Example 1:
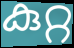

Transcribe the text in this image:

കുറ്റ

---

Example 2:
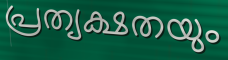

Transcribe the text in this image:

പ്രത്യക്ഷതയും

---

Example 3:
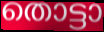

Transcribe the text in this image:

തൊട്ടാ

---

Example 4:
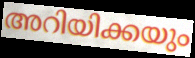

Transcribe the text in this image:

അറിയിക്കയും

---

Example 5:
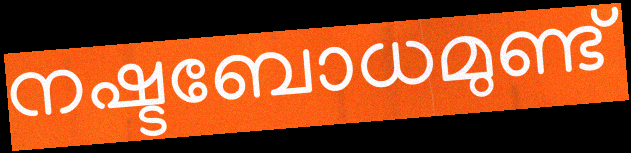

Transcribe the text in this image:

നഷ്ടബോധമുണ്ട്